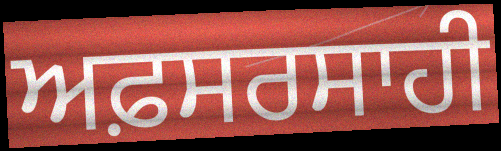
ਅਫ਼ਸਰਸਾਹੀ